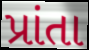
પ્રાંતા